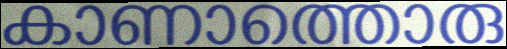
കാണാത്തൊരു